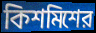
কিশমিশের